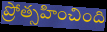
ప్రోత్సహించింది